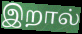
இறால்